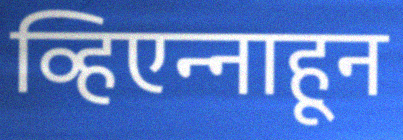
व्हिएन्नाहून